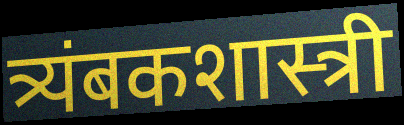
त्र्यंबकशास्त्री